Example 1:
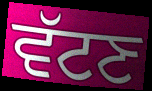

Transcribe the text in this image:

ਵੱਟਣ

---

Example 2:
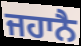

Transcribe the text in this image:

ਜਹਾਨੈ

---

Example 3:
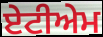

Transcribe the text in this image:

ਏਟੀਅੇਮ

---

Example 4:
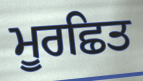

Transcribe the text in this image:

ਮੂਰਛਿਤ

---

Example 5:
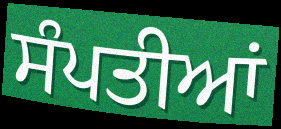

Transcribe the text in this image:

ਸੰਪਤੀਆਂ